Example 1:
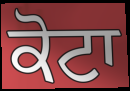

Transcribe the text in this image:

ਕੋਟਾ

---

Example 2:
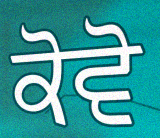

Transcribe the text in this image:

ਕੋਵੋ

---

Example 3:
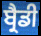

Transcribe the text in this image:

ਬ੍ਰੈਡੀ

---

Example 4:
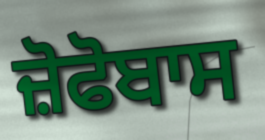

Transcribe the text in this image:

ਜ਼ੋਫੋਬਾਸ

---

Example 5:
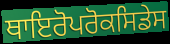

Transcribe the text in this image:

ਥਾਇਰੋਪਰੋਕਸਿਡੇਸ